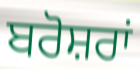
ਬਰੋਸ਼ਰਾਂ